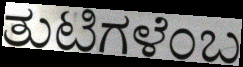
ತುಟಿಗಳೆಂಬ